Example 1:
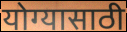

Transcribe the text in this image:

योग्यासाठी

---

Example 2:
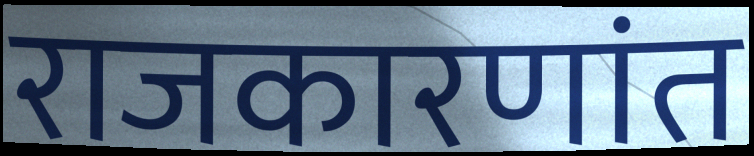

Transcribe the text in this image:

राजकारणांत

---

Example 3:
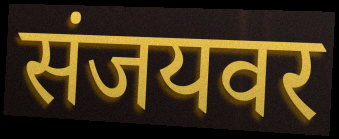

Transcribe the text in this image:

संजयवर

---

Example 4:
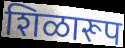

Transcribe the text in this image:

शिळारूप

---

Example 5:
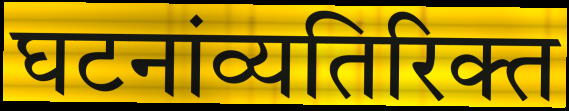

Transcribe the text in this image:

घटनांव्यतिरिक्त